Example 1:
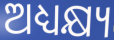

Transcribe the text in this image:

ଅଧ୍ୟକ୍ଷ୍ୟ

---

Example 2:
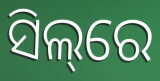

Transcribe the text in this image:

ସିଲ୍‌ରେ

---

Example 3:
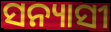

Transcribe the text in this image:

ସନ୍ୟାସୀ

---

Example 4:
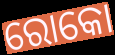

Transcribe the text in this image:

ରୋକୋ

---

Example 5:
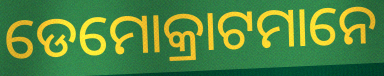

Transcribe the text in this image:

ଡେମୋକ୍ରାଟମାନେ